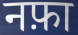
नफ़ा